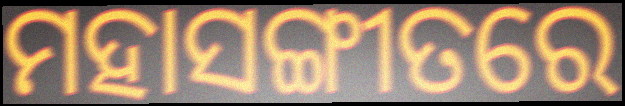
ମହାସଙ୍ଗୀତରେ